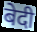
बेदी